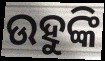
ଉହୁଙ୍କି